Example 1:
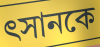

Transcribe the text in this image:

ৎসানকে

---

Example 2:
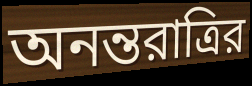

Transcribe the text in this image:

অনন্তরাত্রির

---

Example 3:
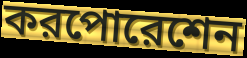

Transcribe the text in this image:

করপোরেশেন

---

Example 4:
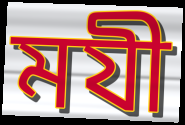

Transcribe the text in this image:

মযী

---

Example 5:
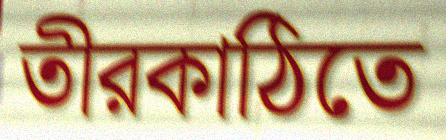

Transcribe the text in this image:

তীরকাঠিতে